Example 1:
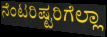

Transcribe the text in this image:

ನೆಂಟರಿಷ್ಟರಿಗೆಲ್ಲಾ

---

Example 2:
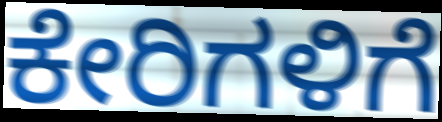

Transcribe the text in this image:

ಕೇರಿಗಳಿಗೆ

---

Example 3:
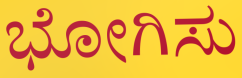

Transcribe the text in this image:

ಭೋಗಿಸು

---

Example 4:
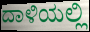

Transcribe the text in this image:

ದಾಳಿಯಲ್ಲಿ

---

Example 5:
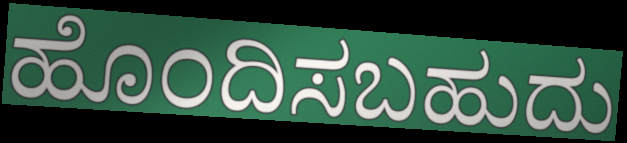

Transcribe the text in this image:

ಹೊಂದಿಸಬಹುದು